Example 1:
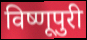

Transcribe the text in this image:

विष्णूपुरी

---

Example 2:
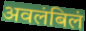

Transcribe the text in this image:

अवलंबिलं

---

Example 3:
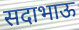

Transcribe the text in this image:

सदाभाऊ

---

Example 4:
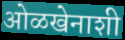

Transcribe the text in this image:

ओळखेनाशी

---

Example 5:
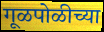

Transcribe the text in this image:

गूळपोळीच्या